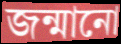
জন্মানো